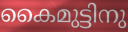
കൈമുട്ടിനു